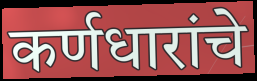
कर्णधारांचे